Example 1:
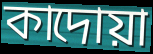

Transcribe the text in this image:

কাদোয়া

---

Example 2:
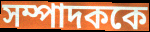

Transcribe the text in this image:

সম্পাদককে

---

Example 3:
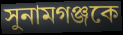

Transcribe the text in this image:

সুনামগঞ্জকে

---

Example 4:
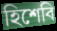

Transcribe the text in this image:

হিশেবি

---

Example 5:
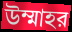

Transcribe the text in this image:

উম্মাহর